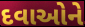
દવાઓને